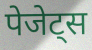
पेजेट्स